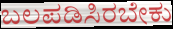
ಬಲಪಡಿಸಿರಬೇಕು